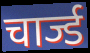
चार्ज्ड